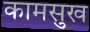
कामसुख